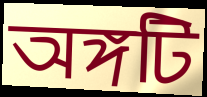
অঙ্গটি